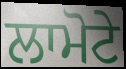
ਲਾਮੋਟੇ